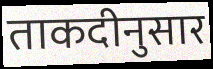
ताकदीनुसार